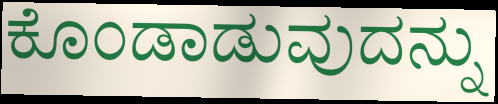
ಕೊಂಡಾಡುವುದನ್ನು